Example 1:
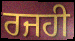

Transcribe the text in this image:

ਰਜਹੀ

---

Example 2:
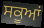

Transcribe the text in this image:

ਸਕੂਆਂ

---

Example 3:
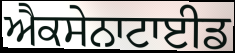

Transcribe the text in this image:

ਐਕਸੇਨਾਟਾਈਡ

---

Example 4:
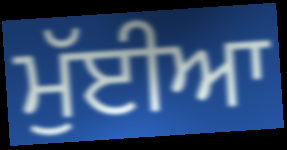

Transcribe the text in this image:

ਮੁੱਈਆ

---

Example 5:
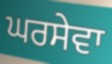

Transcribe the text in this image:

ਘਰਸੇਵਾ